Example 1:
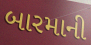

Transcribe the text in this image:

બારમાની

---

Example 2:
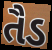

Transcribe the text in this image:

તૈડ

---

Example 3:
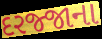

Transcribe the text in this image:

દરજ્જાના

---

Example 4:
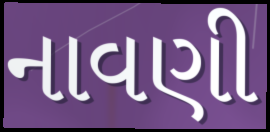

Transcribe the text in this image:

નાવણી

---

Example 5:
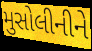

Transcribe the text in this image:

મુસોલીનીને